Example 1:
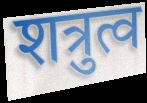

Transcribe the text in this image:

शत्रुत्व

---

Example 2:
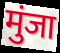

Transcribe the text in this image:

मुंजा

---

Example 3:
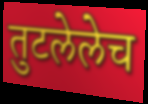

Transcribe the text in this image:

तुटलेलेच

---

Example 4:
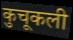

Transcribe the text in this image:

कुचूकली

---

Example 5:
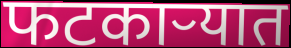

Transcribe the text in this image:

फटकाऱ्यात